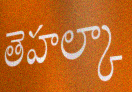
తెహల్కా